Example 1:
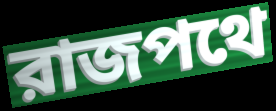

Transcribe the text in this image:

রাজপথে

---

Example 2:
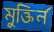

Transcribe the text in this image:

মুক্তির্ন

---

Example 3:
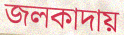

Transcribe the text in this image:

জলকাদায়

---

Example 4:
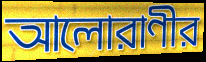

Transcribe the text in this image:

আলোরাণীর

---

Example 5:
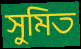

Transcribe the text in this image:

সুমিত